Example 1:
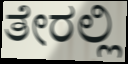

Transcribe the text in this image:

ತೇರಲ್ಲಿ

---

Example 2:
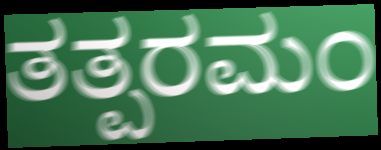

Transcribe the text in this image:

ತತ್ಪರಮಂ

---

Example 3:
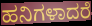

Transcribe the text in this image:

ಹನಿಗಳಾದರೆ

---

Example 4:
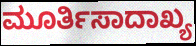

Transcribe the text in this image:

ಮೂರ್ತಿಸಾದಾಖ್ಯ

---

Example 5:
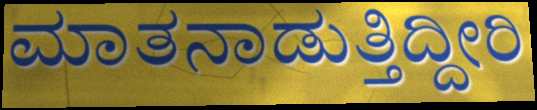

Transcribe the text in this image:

ಮಾತನಾಡುತ್ತಿದ್ದೀರಿ